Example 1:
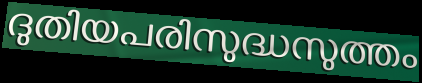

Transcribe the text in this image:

ദുതിയപരിസുദ്ധസുത്തം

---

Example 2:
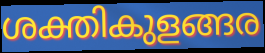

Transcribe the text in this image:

ശക്തികുളങ്ങര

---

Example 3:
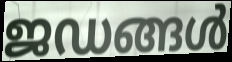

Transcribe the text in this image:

ജഡങ്ങൾ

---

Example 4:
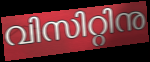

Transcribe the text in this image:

വിസിറ്റിനു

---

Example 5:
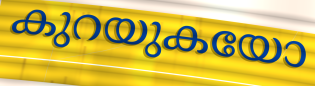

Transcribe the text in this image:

കുറയുകയോ